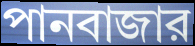
পানবাজার